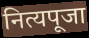
नित्यपूजा